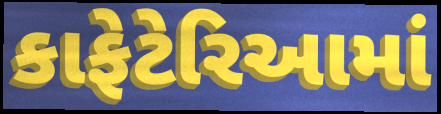
કાફેટેરિઆમાં